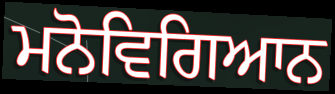
ਮਨੋਵਿਗਿਆਨ